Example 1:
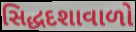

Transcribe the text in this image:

સિદ્ધદશાવાળો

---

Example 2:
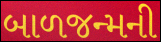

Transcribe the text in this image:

બાળજન્મની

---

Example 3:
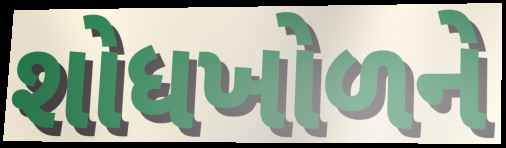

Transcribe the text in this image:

શોધખોળને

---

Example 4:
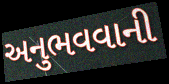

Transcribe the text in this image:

અનુભવવાની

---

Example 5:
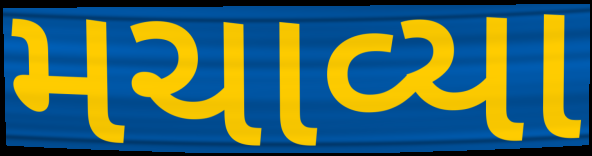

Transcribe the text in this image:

મચાવ્યા